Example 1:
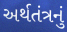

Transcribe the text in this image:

અર્થતંત્રનું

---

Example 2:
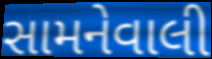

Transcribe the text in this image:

સામનેવાલી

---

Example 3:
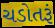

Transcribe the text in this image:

ચડોતરૂં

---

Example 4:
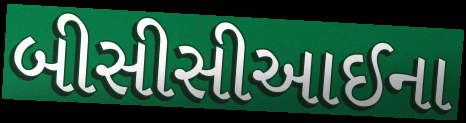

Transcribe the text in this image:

બીસીસીઆઈના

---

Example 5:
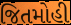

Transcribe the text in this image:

જિતમોહી